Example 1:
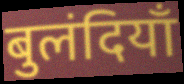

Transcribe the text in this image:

बुलंदियाँ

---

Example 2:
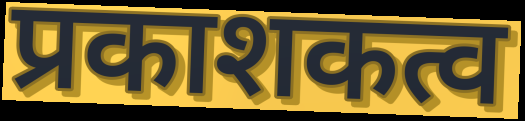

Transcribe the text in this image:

प्रकाशकत्व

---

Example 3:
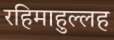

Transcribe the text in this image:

रहिमाहुल्लह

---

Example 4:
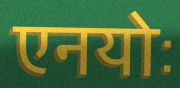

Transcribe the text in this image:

एनयोः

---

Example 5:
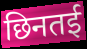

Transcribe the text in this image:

छिनतई